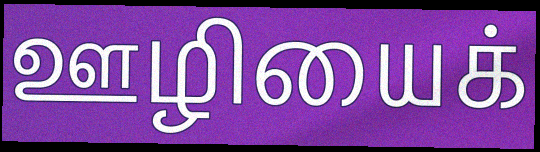
ஊழியைக்